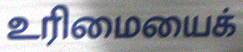
உரிமையைக்